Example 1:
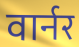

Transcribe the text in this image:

वार्नर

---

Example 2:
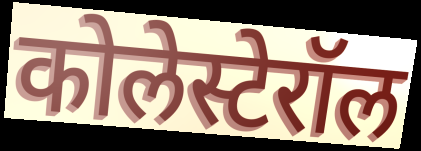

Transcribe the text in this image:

कोलेस्टेरॉल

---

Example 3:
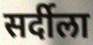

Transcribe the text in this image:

सर्दीला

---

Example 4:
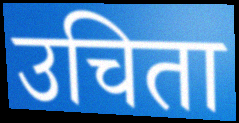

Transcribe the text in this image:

उचिता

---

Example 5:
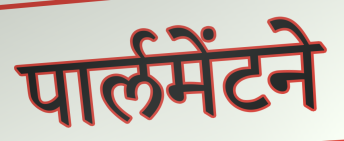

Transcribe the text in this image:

पार्लमेंटने